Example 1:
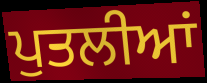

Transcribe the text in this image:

ਪੁਤਲੀਆਂ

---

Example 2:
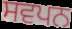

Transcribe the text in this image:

ਸਵਪਨ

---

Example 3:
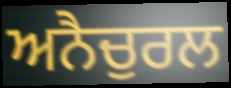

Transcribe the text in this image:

ਅਨੈਚੁਰਲ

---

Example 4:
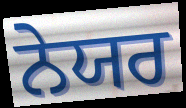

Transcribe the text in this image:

ਨੇਯਰ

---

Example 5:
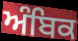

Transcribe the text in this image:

ਅੰਬਿਕ